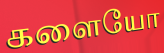
களையோ